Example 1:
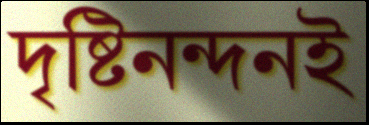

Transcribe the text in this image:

দৃষ্টিনন্দনই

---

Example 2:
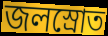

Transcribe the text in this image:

জলস্রোত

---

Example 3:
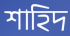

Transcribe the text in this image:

শাহিদ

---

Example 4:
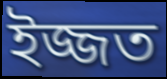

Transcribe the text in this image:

ইজ্জত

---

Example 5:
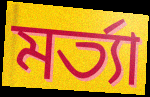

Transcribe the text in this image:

মর্ত্যা